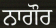
ਨਾਗੌਰ